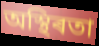
অস্থিৰতা